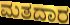
ಮತದಾರ